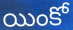
యింకో